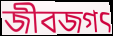
জীবজগৎ